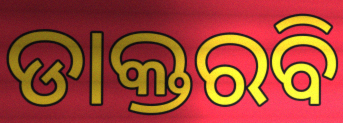
ଡାକ୍ତରବି